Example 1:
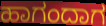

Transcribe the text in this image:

ಹಾಗಂದಾಗ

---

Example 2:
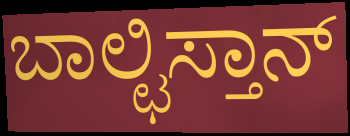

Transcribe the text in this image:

ಬಾಲ್ಟಿಸ್ತಾನ್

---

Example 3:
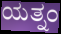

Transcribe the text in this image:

ಯತ್ನಂ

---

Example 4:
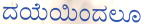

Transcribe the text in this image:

ದಯೆಯಿಂದಲೂ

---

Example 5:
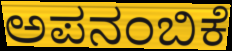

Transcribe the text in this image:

ಅಪನಂಬಿಕೆ